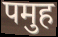
पमुह